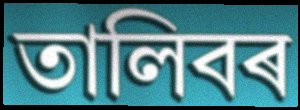
তালিবৰ